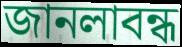
জানলাবন্ধ